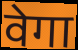
वेगा